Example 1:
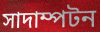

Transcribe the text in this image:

সাদাম্পটন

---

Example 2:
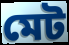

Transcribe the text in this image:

মেট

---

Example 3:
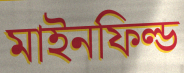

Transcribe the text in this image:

মাইনফিল্ড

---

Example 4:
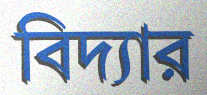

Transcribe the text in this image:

বিদ্যার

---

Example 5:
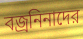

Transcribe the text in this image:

বজ্রনিনাদের